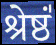
श्रेष्ठं॑